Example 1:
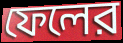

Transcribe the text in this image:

ফেলের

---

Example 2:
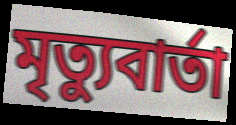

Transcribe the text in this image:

মৃত্যুবার্তা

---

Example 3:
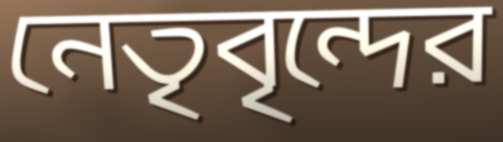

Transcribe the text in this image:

নেতৃবৃন্দের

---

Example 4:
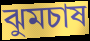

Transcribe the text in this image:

ঝুমচাষ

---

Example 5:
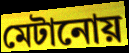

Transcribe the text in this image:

মেটানোয়